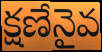
క్షణేనైవ